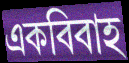
একবিবাহ